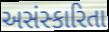
અસંસ્કારિતા